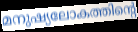
മനുഷ്യലോകത്തിന്റെ